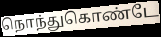
நொந்துகொண்டே